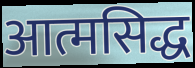
आत्मसिद्ध